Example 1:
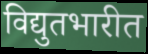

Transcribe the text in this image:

विद्युतभारीत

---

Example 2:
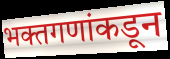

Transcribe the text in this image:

भक्तगणांकडून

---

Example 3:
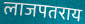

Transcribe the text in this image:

लाजपतराय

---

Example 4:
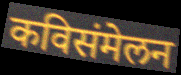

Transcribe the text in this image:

कविसंमेलन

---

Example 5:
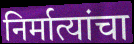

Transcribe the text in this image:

निर्मात्यांचा